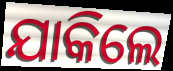
ଯାକିଲେ